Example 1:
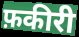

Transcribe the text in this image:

फ़कीरी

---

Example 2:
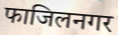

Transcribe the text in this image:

फाजिलनगर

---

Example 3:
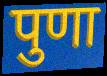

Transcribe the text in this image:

पुणा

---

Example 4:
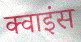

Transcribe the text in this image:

क्वाइंस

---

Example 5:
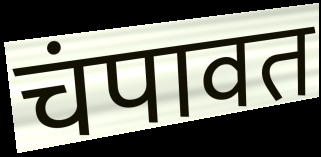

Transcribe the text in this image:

चंपावत